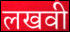
लखवी